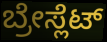
ಬ್ರೇಸ್ಲೆಟ್